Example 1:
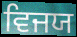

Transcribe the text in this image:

ਵਿਜਯ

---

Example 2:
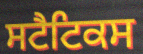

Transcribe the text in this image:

ਸਟੈਟਿਕਸ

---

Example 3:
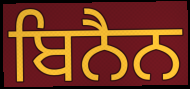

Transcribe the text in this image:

ਬਿਨੈਨ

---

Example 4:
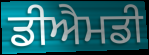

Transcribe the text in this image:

ਡੀਐਮਡੀ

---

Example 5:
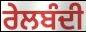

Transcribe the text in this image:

ਰੇਲਬੰਦੀ